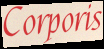
Corporis